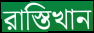
রাস্তিখান